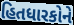
હિતધારકોને